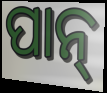
ପାନ୍